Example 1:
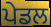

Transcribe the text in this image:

ਪੇਡਲ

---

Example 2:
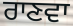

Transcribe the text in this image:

ਰਾਣਵਾ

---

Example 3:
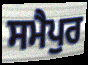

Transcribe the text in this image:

ਸਮੈਪੁਰ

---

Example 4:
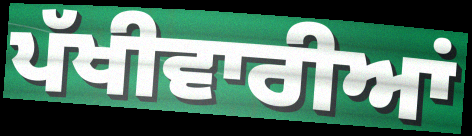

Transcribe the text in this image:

ਪੱਖੀਵਾਰੀਆਂ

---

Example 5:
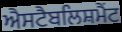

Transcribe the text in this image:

ਐਸਟੈਬਲਿਸ਼ਮੈਂਟ